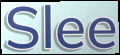
Slee